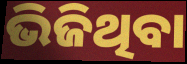
ଭିଜିଥିବା